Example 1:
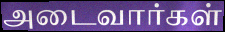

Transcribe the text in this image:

அடைவார்கள்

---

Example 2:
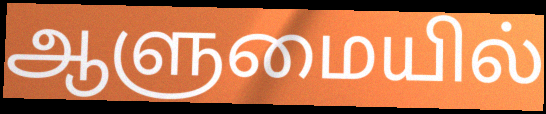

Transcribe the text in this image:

ஆளுமையில்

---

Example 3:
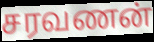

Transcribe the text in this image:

சரவணன்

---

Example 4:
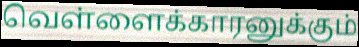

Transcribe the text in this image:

வெள்ளைக்காரனுக்கும்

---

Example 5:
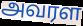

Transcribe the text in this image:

அவரள